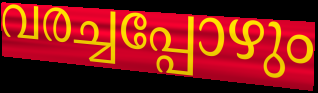
വരച്ചപ്പോഴും